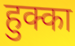
हुक्का